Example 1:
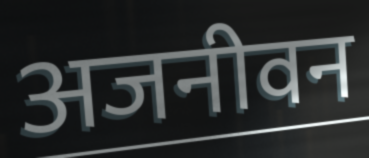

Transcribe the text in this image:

अजनीवन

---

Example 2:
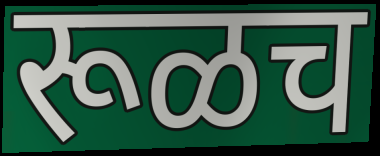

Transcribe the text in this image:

रूळच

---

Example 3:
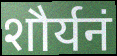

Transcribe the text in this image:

शौर्यनं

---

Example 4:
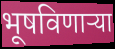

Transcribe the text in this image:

भूषविणाऱ्या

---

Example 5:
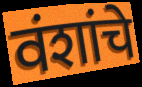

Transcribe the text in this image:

वंशांचे